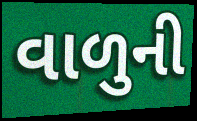
વાળુની